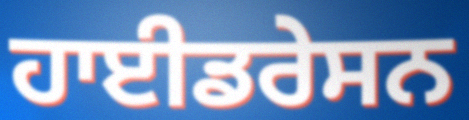
ਹਾਈਡਰੇਸਨ